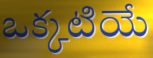
ఒక్కటియే